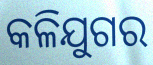
କଳିଯୁଗର